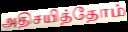
அதிசயித்தோம்